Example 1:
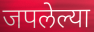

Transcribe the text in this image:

जपलेल्या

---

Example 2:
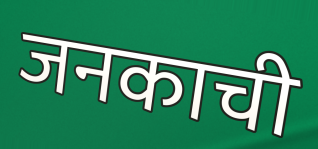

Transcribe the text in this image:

जनकाची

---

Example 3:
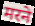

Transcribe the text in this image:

मरने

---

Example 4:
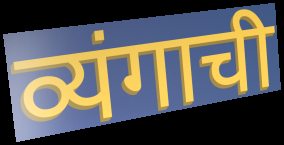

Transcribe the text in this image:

व्यंगाची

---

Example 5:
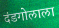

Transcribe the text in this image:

दंडगोलाला